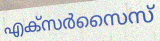
എക്സർസൈസ്